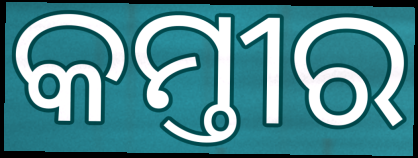
କମ୍ତୀର